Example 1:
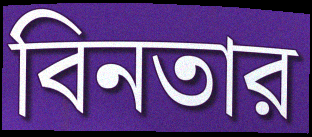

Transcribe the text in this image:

বিনতার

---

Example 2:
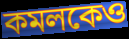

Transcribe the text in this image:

কমলকেও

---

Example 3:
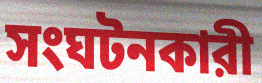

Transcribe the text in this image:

সংঘটনকারী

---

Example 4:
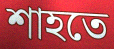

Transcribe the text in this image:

শাহতে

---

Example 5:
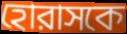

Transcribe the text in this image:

হোরাসকে